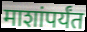
माशांपर्यंत